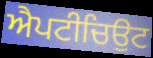
ਐਪਟੀਚਿਉਟ